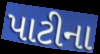
પાટીના